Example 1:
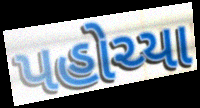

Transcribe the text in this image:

પહોચ્યા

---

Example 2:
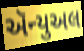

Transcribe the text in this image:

ઍન્યુઅલ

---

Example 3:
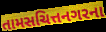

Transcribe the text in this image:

તામસચિત્તનગરના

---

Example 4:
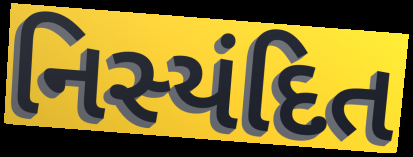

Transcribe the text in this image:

નિસ્યંદિત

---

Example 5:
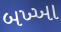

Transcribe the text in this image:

બખ્ખા